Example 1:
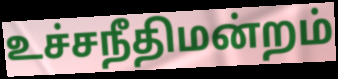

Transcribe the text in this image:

உச்சநீதிமன்றம்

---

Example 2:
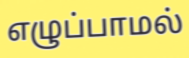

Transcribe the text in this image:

எழுப்பாமல்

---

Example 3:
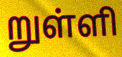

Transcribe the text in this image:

றுள்ளி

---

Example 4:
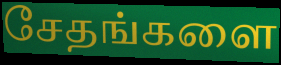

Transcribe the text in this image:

சேதங்களை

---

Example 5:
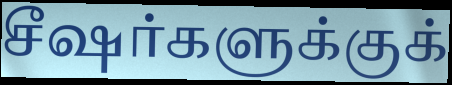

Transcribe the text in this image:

சீஷர்களுக்குக்